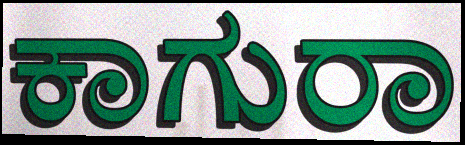
ಕಾಗುರಾ